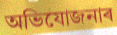
অভিযোজনাৰ